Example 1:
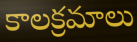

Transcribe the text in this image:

కాలక్రమాలు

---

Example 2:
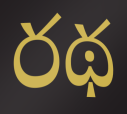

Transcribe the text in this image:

రథ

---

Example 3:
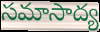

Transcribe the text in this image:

సమాసాద్య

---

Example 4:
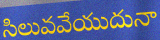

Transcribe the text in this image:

సిలువవేయుదునా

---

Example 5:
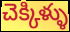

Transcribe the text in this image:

చెక్కిళ్ళు